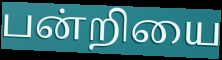
பன்றியை